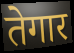
तेगार